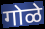
गोळे